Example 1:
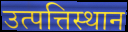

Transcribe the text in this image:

उत्पत्तिस्थान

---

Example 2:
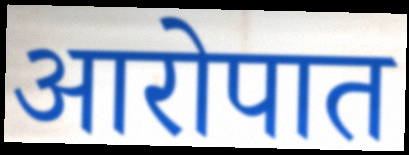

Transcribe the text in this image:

आरोपात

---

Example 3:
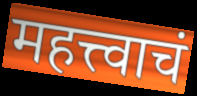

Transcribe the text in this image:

महत्त्वाचं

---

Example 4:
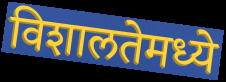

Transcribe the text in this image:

विशालतेमध्ये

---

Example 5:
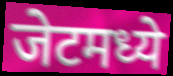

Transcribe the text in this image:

जेटमध्ये